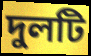
দুলটি